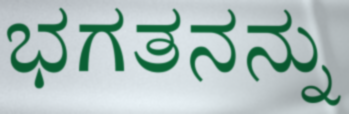
ಭಗತನನ್ನು